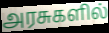
அரசுகளில்